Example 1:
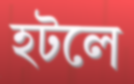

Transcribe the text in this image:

হটলে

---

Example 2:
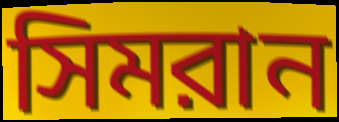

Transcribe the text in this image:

সিমরান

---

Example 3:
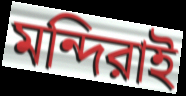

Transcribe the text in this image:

মন্দিরাই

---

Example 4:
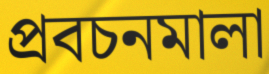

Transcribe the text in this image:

প্রবচনমালা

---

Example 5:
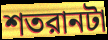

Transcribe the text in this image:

শতরানটা